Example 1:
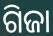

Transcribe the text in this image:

ଗିଜା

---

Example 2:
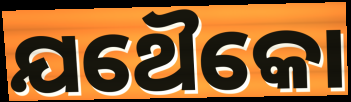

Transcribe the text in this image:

ଯଥୈକୋ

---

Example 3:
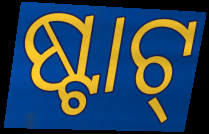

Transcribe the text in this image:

ଷ୍ଟାଟ୍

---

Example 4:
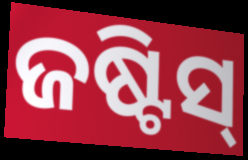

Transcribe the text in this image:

ଜଷ୍ଟିସ୍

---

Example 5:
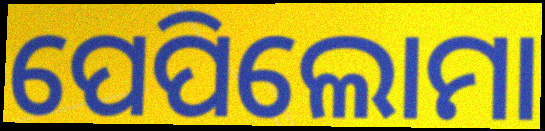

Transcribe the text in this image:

ପେପିଲୋମା